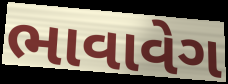
ભાવાવેગ